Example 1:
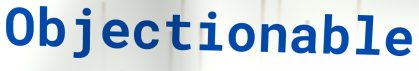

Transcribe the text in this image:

Objectionable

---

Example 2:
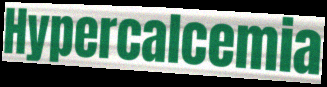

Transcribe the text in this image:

Hypercalcemia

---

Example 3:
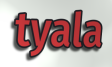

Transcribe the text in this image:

tyala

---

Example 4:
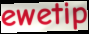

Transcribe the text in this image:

ewetip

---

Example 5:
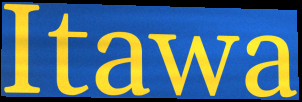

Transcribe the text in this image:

Itawa